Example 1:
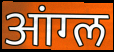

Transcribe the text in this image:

आंग्ल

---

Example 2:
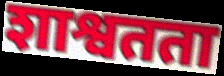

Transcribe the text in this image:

शाश्वतता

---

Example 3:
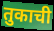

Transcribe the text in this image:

तुकाची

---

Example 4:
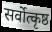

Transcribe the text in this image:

सर्वोत्कृष्ठ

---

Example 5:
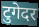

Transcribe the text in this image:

टुगेदर